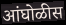
आंघोळीस